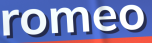
romeo